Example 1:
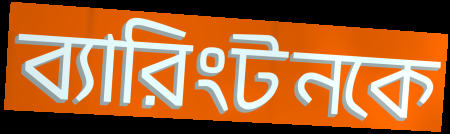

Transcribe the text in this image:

ব্যারিংটনকে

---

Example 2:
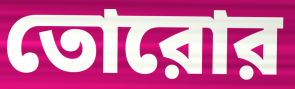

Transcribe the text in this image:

তোরোর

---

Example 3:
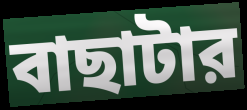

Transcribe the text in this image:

বাছাটার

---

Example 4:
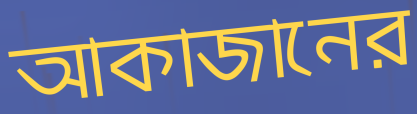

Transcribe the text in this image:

আকাজানের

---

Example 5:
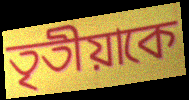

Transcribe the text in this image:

তৃতীয়াকে